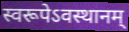
स्वरूपेऽवस्थानम्